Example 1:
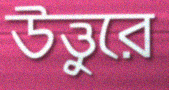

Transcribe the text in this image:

উত্তুরে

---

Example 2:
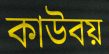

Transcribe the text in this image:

কাউবয়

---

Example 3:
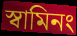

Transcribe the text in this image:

স্বামিনং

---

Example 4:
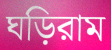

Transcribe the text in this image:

ঘড়িরাম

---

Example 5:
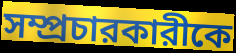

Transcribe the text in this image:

সম্প্রচারকারীকে